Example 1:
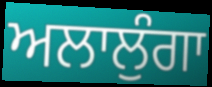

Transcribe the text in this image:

ਅਲਾਲੁੰਗਾ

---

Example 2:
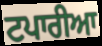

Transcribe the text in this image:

ਟਪਾਰੀਆ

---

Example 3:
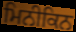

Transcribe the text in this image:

ਮਿਨੀਕਿਨ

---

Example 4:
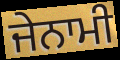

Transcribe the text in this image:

ਜੇਨਾਮੀ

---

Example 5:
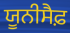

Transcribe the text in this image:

ਯੂਨੀਸੈਫ਼